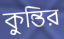
কুন্তির